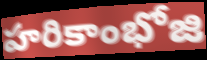
హరికాంభోజి